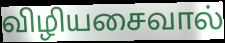
விழியசைவால்